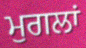
ਮੁਗਲਾਂ